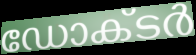
ഡോക്‌ടർ